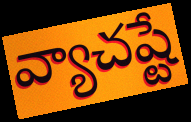
వ్యాచష్టే